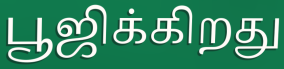
பூஜிக்கிறது